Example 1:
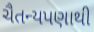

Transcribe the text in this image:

ચૈતન્યપણાથી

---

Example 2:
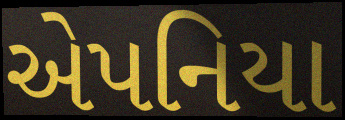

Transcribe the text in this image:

એપનિયા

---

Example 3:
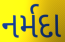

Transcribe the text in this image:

નર્મદા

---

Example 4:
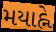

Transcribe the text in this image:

મયાહ્ને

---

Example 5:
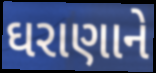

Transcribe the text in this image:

ઘરાણાને